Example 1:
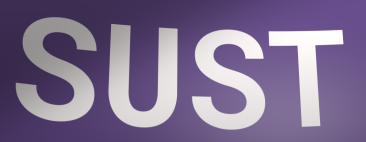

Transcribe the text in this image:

SUST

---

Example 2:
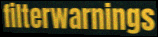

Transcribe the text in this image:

filterwarnings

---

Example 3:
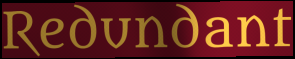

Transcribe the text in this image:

Redundant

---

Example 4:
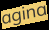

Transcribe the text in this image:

agina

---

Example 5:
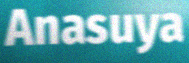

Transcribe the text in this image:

Anasuya